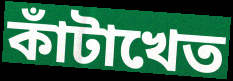
কাঁটাখেত